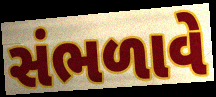
સંભળાવે